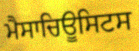
ਮੈਸਾਚਿਊਸਿਟਸ